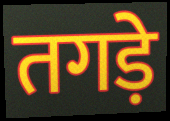
तगड़े